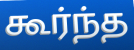
கூர்ந்த